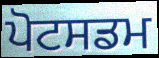
ਪੋਟਸਡਮ